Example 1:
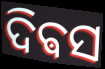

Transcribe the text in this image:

ଦିଵସ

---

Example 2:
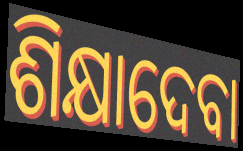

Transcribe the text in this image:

ଶିକ୍ଷାଦେବା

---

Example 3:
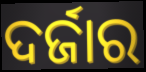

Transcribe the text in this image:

ଦର୍ଜାର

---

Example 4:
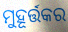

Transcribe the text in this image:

ମୁହୂର୍ତ୍ତକର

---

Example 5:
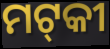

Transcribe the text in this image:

ମଟ୍‌କୀ